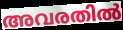
അവരതിൽ